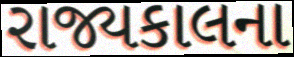
રાજ્યકાલના